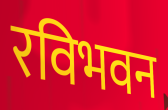
रविभवन